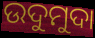
ଉଦୁମୁଦା